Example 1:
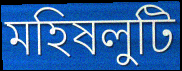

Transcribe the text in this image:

মহিষলুটি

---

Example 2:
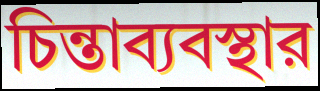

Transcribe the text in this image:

চিন্তাব্যবস্থার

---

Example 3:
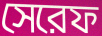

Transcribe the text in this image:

সেরেফ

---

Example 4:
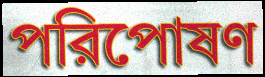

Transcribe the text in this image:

পরিপোষণ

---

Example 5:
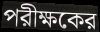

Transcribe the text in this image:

পরীক্ষকের